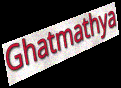
Ghatmathya